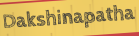
Dakshinapatha